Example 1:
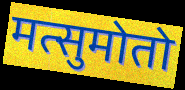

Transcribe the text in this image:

मत्सुमोतो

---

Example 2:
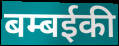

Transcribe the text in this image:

बम्बईकी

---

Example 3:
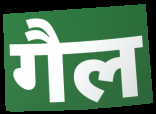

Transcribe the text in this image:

गैल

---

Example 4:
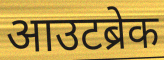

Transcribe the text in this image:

आउटब्रेक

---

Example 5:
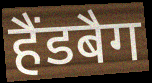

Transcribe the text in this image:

हैंडबैग